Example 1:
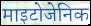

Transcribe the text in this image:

माइटोजेनिक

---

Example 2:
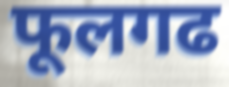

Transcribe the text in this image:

फूलगढ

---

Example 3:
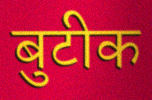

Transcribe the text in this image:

बुटीक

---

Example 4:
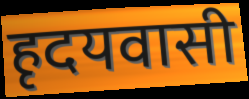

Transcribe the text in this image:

हृदयवासी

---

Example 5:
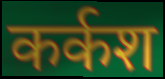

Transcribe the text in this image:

कर्कश